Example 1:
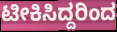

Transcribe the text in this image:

ಟೀಕಿಸಿದ್ದರಿಂದ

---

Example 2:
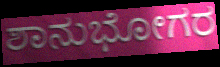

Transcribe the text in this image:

ಶಾನುಭೋಗರ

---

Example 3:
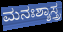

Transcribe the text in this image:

ಮನಃಶ್ಶಾಸ್ತ್ರ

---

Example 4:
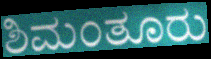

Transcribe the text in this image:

ಶಿಮಂತೂರು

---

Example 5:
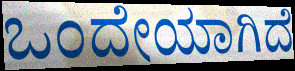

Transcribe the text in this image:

ಒಂದೇಯಾಗಿದೆ